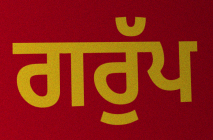
ਗਰੁੱਪ